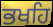
ਭਖਹਿ